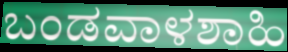
ಬಂಡವಾಳಶಾಹಿ